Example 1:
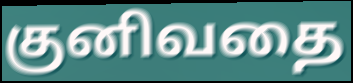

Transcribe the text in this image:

குனிவதை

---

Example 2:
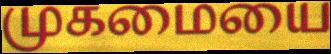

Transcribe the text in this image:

முகமையை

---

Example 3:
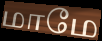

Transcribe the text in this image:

மாமே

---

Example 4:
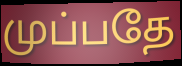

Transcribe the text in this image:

முப்பதே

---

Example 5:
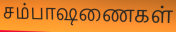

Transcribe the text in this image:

சம்பாஷணைகள்